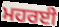
ਮਹਰਈ